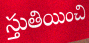
స్తుతియించి